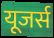
यूजर्स